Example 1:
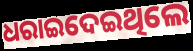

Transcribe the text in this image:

ଧରାଇଦେଇଥିଲେ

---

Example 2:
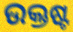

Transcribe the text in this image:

ଉକ୍ତଷ୍ଟ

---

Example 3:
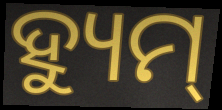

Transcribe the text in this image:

ହ୍ୟୁମ୍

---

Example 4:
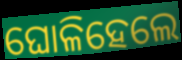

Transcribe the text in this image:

ଘୋଳିହେଲେ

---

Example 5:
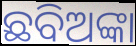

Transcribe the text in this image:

ଛବିଅଙ୍କା